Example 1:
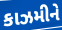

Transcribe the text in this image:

કાઝમીને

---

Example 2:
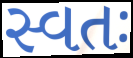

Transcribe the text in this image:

સ્વતઃ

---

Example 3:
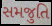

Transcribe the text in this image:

સમજુતિ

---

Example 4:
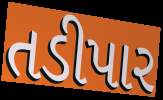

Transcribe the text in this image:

તડીપાર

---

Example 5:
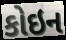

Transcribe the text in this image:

કોઇન